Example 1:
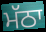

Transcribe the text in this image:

ਮੱਠਾ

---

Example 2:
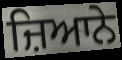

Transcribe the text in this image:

ਜ਼ਿਆਨੇ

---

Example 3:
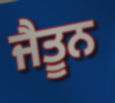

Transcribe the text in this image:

ਜੈਤੂਨ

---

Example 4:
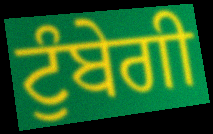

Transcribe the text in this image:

ਟੁੰਬੇਗੀ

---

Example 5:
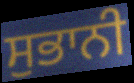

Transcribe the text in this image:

ਸੁਭਾਨੀ